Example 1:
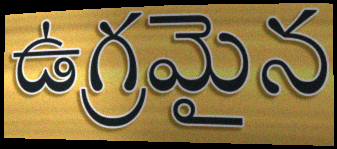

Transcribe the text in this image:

ఉగ్రమైన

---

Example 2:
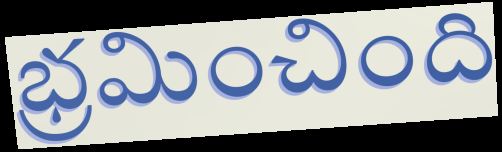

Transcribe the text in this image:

భ్రమించింది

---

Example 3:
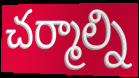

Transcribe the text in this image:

చర్మాల్ని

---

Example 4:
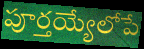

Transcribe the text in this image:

పూర్తయ్యేలోపే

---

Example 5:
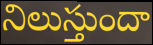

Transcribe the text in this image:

నిలుస్తుందా